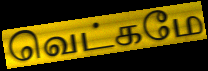
வெட்கமே